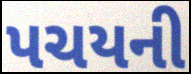
પચયની